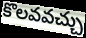
కొలవవచ్చు